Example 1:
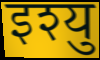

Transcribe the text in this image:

इश्यु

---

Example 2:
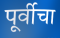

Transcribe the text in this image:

पूर्वीचा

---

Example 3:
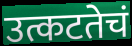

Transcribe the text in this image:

उत्कटतेचं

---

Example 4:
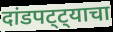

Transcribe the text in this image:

दांडपट्ट्याचा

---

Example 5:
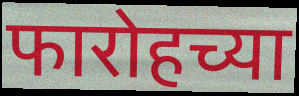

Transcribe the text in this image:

फारोहच्या